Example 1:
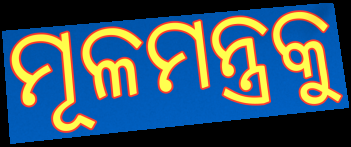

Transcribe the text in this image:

ମୂଳମନ୍ତ୍ରକୁ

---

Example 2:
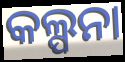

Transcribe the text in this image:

କଲ୍ପନା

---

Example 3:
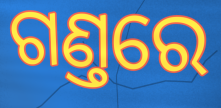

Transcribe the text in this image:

ଗଣ୍ତରେ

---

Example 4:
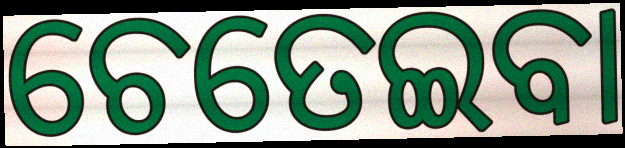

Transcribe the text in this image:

ଚେତେଇବା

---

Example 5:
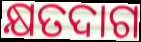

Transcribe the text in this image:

କ୍ଷତଦାଗ